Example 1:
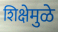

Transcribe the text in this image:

शिक्षेमुळे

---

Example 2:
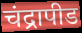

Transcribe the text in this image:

चंद्रापीड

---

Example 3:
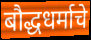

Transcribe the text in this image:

बौद्धधर्माचे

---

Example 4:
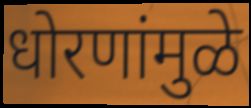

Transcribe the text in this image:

धोरणांमुळे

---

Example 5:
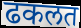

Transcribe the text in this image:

ढकलत